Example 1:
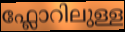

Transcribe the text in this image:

ഫ്ലോറിലുള്ള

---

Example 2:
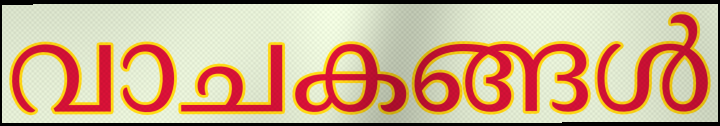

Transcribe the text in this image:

വാചകങ്ങൾ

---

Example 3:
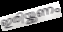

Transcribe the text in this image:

ഇരിയ്ക്കണം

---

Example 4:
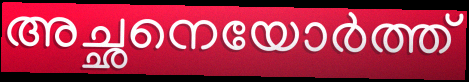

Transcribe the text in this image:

അച്ഛനെയോർത്ത്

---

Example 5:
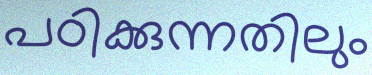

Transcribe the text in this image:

പഠിക്കുന്നതിലും